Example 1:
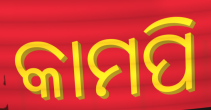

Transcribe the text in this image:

କାମପି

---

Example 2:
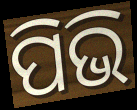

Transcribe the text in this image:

ପିଭି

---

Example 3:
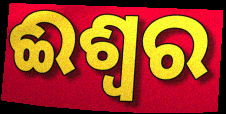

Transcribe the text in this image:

ଈଶ୍ୱର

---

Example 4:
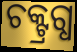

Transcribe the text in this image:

ଚକ୍ଟ୍ରଗ୍ଧ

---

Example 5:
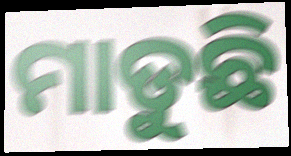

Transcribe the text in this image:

ମାଡୁଛି